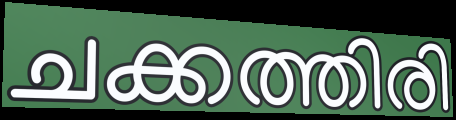
ചക്കത്തിരി